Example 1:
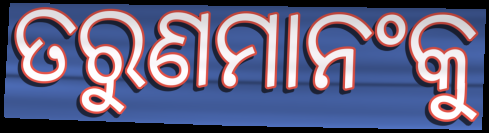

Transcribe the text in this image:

ତରୁଣମାନଂକୁ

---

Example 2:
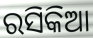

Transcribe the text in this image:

ରସିକିଆ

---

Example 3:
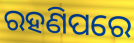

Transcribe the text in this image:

ରହଣିପରେ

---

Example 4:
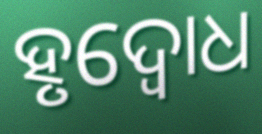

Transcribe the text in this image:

ହୃଦ୍ବୋଧ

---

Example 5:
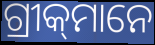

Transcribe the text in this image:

ଗ୍ରୀକ୍‌ମାନେ